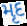
મૃદ